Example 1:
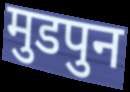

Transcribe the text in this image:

मुडपुन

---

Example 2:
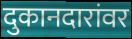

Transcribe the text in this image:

दुकानदारांवर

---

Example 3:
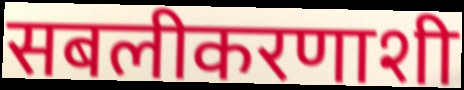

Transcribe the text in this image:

सबलीकरणाशी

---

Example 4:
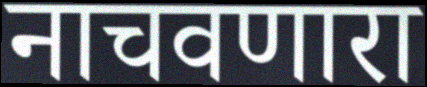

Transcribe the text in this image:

नाचवणारा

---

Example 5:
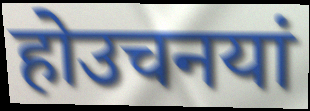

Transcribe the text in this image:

होउचनयां